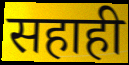
सहाही